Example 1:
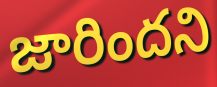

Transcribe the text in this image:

జారిందని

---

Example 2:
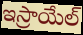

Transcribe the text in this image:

ఇస్రాయేల్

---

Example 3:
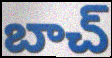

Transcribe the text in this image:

బాచ్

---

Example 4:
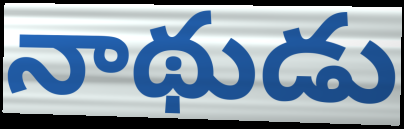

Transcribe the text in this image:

నాథుడు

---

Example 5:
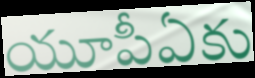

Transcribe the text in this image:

యూపీఏకు